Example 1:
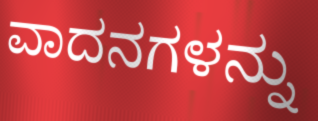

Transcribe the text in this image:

ವಾದನಗಳನ್ನು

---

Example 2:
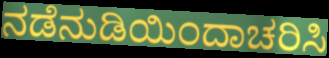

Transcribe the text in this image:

ನಡೆನುಡಿಯಿಂದಾಚರಿಸಿ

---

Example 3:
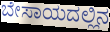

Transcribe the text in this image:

ಬೇಸಾಯದಲ್ಲಿನ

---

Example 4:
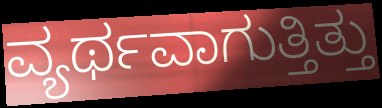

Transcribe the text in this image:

ವ್ಯರ್ಥವಾಗುತ್ತಿತ್ತು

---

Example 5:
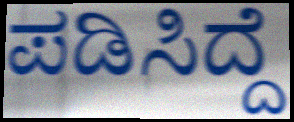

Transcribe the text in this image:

ಪಡಿಸಿದ್ದೆ